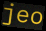
jeo